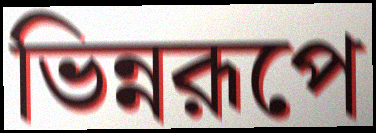
ভিন্নরূপে